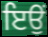
ਇਉਂ